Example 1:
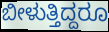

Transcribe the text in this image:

ಬೀಳುತ್ತಿದ್ದರೂ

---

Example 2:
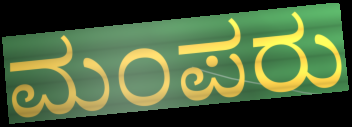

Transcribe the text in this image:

ಮಂಪರು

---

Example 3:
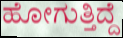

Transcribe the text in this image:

ಹೋಗುತ್ತಿದ್ದೆ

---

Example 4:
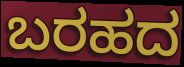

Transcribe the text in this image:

ಬರಹದ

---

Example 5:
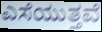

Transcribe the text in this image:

ಎಸೆಯುತ್ತವೆ